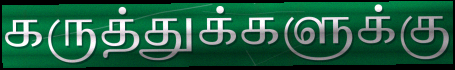
கருத்துக்களுக்கு